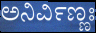
ಅನಿರ್ವಿಣ್ಣಃ